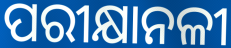
ପରୀକ୍ଷାନଳୀ